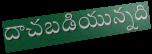
దాచబడియున్నది